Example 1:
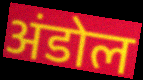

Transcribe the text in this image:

अंडोल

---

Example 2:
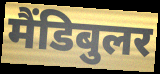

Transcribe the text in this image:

मैंडिबुलर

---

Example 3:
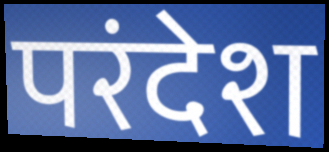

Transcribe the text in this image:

परंदेश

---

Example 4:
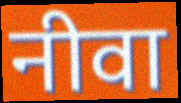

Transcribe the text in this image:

नीवा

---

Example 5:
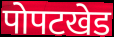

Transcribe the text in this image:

पोपटखेड